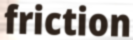
friction